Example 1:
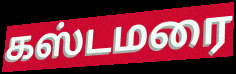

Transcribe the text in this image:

கஸ்டமரை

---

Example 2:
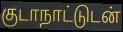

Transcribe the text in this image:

குடாநாட்டுடன்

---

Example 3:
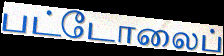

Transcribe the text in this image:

பட்டோலைப்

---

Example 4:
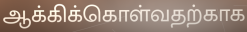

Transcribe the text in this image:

ஆக்கிக்கொள்வதற்காக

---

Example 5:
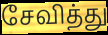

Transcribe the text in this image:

சேவித்து